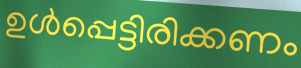
ഉൾപ്പെട്ടിരിക്കണം